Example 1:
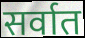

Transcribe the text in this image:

सर्वात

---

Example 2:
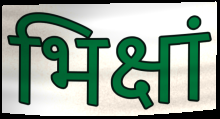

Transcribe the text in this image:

भिक्षां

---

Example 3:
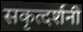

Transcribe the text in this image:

सकृत्दर्शनी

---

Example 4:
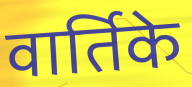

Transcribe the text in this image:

वार्तिके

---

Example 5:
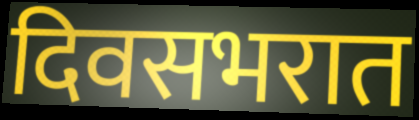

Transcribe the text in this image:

दिवसभरात